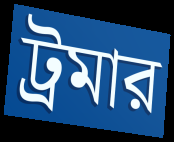
ট্রমার